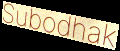
Subodhak